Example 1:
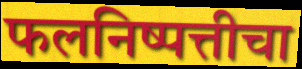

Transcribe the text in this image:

फलनिष्पत्तीचा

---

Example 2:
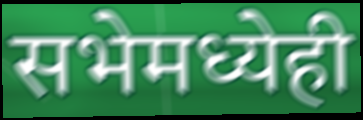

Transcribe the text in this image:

सभेमध्येही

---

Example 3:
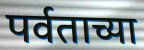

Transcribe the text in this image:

पर्वताच्या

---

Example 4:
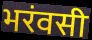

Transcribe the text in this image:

भरंवसी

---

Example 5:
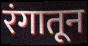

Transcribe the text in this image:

रंगातून